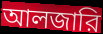
আলজারি